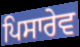
ਪਿਸਾਰੇਵ